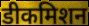
डीकमिशन